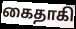
கைதாகி